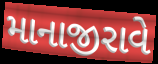
માનાજીરાવે